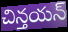
చిన్తయన్